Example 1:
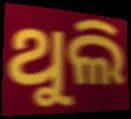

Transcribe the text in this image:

ଥୁଲି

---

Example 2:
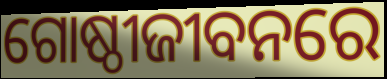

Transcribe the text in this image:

ଗୋଷ୍ଠୀଜୀବନରେ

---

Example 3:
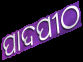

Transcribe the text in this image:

ପାଦପୀଠ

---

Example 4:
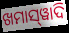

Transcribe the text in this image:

ଖମାସ୍‌ୱାଦି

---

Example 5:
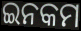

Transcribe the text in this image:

ଇନକମ